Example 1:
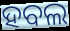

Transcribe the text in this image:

ହବଲ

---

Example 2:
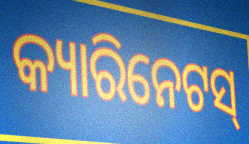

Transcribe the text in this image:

କ୍ୟାରିନେଟସ୍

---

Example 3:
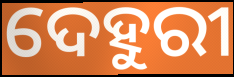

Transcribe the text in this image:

ଦେହୁରୀ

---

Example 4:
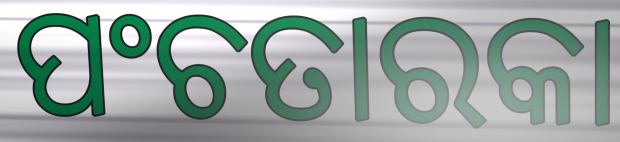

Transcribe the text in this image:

ପଂଚତାରକା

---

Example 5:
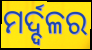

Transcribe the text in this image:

ମର୍ଦ୍ଦଳର